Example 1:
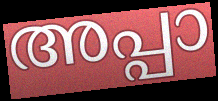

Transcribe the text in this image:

അപ്പാ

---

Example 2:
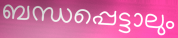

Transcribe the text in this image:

ബന്ധപ്പെട്ടാലും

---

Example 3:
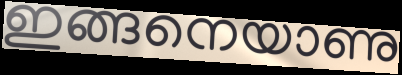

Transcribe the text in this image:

ഇങ്ങനെയാണു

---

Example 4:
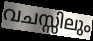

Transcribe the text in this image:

വചസ്സിലും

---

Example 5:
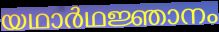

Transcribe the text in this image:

യഥാർഥജ്ഞാനം